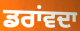
ਡਰਾਂਵਦਾ